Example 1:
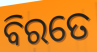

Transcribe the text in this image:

ବିରତେ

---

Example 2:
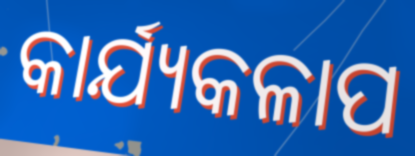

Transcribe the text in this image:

କାର୍ଯ୍ୟକଳାପ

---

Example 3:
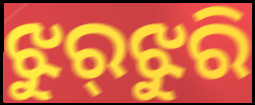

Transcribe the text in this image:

ଝୁର୍‌ଝୁରି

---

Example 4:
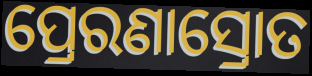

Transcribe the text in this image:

ପ୍ରେରଣାସ୍ରୋତ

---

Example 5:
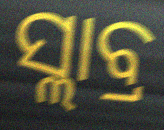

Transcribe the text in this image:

ସ୍ଲାବ୍ର